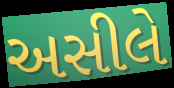
અસીલે